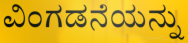
ವಿಂಗಡನೆಯನ್ನು